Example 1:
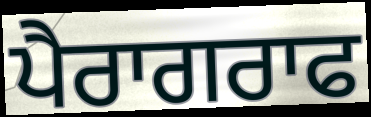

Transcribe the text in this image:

ਪੈਰਾਗਰਾਫ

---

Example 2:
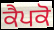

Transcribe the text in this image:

ਕੈਪਕੋ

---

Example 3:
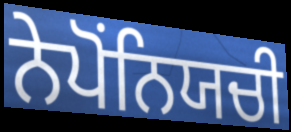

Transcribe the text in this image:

ਨੇਪੋਂਨਿਯਚੀ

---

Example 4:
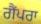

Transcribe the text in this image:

ਗੈਂਪਰਾ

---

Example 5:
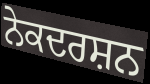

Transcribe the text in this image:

ਨੇਕਦਰਸ਼ਨ